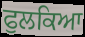
ਫੁਲਕਿਆ